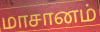
மாசானம்